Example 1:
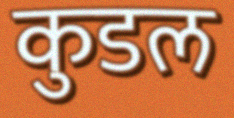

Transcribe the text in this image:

कुडल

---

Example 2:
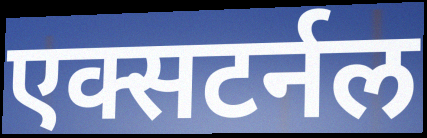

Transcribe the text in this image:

एक्सटर्नल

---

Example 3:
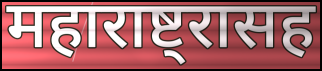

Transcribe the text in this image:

महाराष्ट्रासह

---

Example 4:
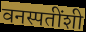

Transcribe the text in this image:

वनस्पतींशी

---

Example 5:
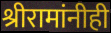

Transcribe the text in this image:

श्रीरामांनीही